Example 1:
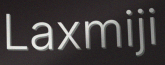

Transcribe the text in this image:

Laxmiji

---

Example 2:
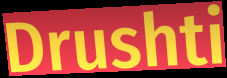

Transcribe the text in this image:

Drushti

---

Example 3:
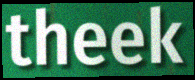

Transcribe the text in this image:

theek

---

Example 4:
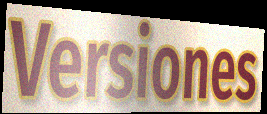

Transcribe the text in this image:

Versiones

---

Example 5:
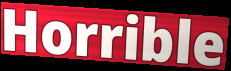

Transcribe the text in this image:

Horrible